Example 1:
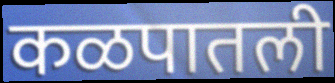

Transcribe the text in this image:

कळपातली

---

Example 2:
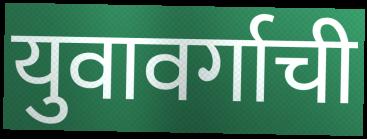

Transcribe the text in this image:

युवावर्गाची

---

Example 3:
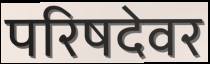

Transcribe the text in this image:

परिषदेवर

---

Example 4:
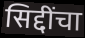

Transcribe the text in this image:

सिद्दींचा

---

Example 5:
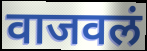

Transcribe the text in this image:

वाजवलं